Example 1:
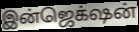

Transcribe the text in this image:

இன்ஜெக்‌ஷன்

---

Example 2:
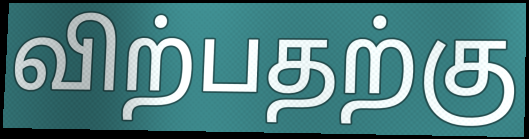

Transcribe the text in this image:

விற்பதற்கு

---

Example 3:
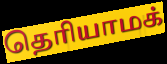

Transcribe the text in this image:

தெரியாமக்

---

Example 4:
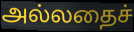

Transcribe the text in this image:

அல்லதைச்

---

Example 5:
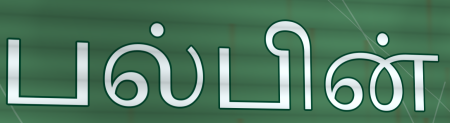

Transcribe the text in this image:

பல்பின்